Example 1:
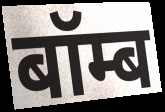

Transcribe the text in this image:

बॉम्ब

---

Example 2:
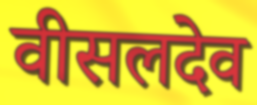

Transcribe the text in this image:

वीसलदेव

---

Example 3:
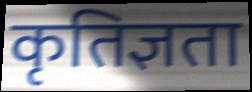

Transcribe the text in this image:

कृतिज्ञता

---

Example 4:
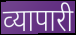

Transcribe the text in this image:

व्‍यापारी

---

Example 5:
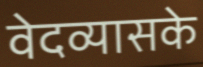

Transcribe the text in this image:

वेदव्यासके